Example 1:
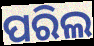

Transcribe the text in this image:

ପରିଲ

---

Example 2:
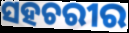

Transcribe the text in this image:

ସହଚରୀର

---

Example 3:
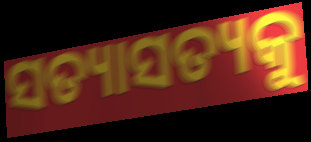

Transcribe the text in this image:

ସତ୍ୟାସତ୍ୟକୁ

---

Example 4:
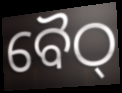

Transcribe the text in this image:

ବୈଠ୍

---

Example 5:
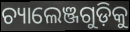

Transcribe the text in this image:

ଚ୍ୟାଲେଞ୍ଜଗୁଡ଼ିକୁ